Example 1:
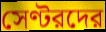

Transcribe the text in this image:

সেণ্টরদের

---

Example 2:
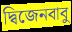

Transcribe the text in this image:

দ্বিজেনবাবু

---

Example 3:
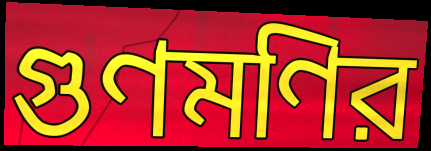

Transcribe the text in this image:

গুণমণির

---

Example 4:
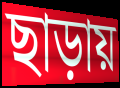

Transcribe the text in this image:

ছাড়ায়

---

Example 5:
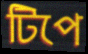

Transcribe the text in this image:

টিপে